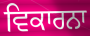
ਵਿਕਾਰਨਾ